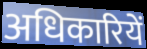
अधिकारियें